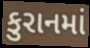
કુરાનમાં